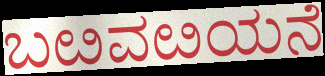
ಬೞವೞಯನೆ